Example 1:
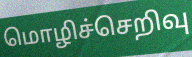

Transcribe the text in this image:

மொழிச்செறிவு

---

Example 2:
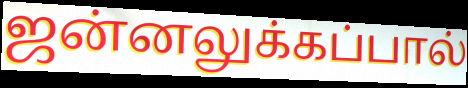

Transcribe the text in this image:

ஜன்னலுக்கப்பால்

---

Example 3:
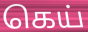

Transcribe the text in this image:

கெய்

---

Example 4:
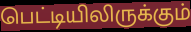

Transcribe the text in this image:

பெட்டியிலிருக்கும்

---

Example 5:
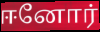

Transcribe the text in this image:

ஈனோர்